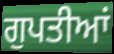
ਗੁਪਤੀਆਂ